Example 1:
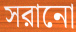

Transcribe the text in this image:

সরানো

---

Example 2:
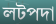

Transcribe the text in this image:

লটপদা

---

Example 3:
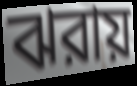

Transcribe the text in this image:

ঝরায়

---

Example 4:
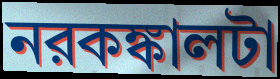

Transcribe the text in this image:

নরকঙ্কালটা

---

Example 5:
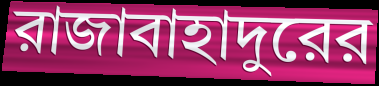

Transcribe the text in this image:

রাজাবাহাদুরের